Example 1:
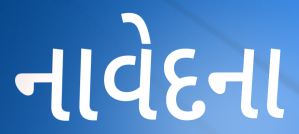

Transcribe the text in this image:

નાવેદના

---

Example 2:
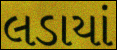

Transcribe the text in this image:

લડાયાં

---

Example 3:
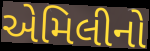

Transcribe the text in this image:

એમિલીનો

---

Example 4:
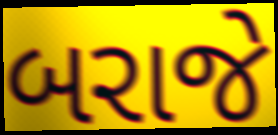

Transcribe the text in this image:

બરાજે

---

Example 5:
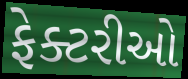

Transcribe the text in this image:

ફેક્ટરીઓ